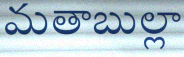
మతాబుల్లా